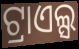
ଟ୍ରାଏଲ୍ସ